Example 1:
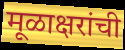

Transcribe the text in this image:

मूळाक्षरांची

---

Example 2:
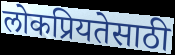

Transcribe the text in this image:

लोकप्रियतेसाठी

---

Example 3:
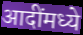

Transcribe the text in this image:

आदींमध्ये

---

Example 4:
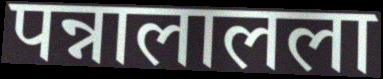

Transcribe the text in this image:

पन्नालालला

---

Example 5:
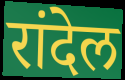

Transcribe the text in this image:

रांदेल